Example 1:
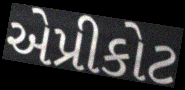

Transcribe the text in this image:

એપ્રીકોટ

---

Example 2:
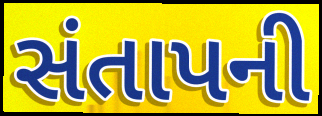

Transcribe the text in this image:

સંતાપની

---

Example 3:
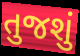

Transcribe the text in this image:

તુજશું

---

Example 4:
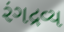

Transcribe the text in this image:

રંગદ્રવ્ય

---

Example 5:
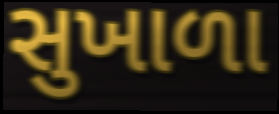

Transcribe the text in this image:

સુખાળા